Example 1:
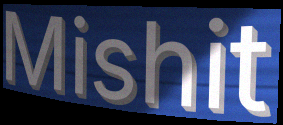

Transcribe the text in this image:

Mishit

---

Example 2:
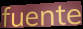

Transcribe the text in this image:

fuente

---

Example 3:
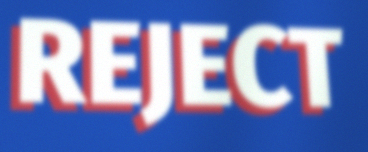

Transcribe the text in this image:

REJECT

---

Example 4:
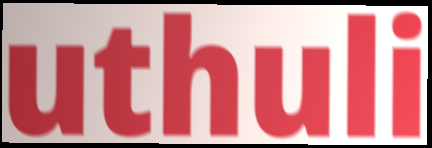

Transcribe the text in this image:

uthuli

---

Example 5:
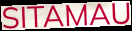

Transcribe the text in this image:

SITAMAU